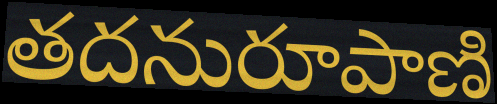
తదనురూపాణి